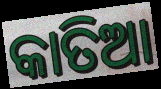
କାତିଆ